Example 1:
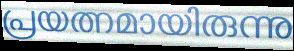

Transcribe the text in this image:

പ്രയത്നമായിരുന്നു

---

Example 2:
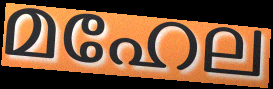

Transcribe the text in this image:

മഹേല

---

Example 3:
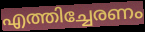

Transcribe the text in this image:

എത്തിച്ചേരണം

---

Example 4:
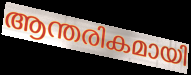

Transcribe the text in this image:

ആന്തരികമായി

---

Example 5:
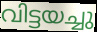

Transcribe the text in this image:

വിട്ടയച്ചു